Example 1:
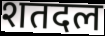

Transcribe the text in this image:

शतदल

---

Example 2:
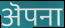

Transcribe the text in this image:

ऄपना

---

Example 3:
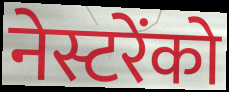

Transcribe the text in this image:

नेस्टरेंको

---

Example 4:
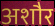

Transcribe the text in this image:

अशौर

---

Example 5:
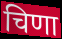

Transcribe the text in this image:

चिणा